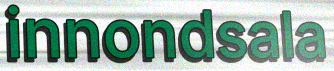
innondsala